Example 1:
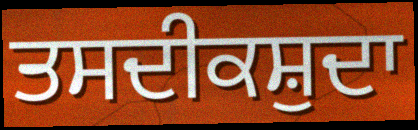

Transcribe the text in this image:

ਤਸਦੀਕਸ਼ੁਦਾ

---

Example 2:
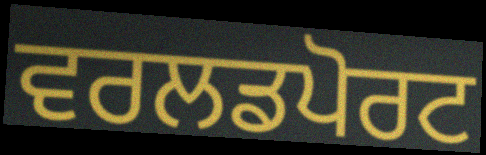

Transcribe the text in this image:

ਵਰਲਡਪੋਰਟ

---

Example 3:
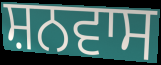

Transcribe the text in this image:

ਸ਼ਨਵਾਸ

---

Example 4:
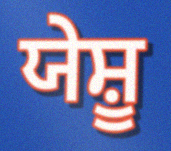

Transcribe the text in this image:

ਯੇਸ਼ੂ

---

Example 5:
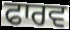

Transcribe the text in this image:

ਫਾਰਵ